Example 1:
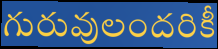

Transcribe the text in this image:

గురువులందరికీ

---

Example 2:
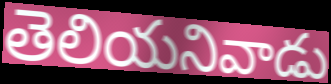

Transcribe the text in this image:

తెలియనివాడు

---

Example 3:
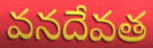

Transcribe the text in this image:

వనదేవత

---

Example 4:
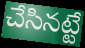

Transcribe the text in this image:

చేసినట్టే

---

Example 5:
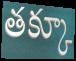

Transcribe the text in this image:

తక్కూ